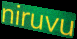
niruvu